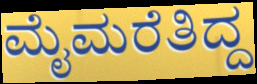
ಮೈಮರೆತಿದ್ದ